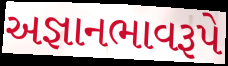
અજ્ઞાનભાવરૂપે